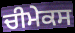
ਚੀਮੇਕਸ